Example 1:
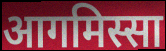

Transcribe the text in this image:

आगमिस्सा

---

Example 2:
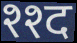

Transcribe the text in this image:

श्श्द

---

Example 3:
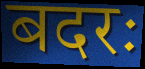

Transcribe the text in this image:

बदरः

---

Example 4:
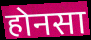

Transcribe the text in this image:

होनसा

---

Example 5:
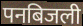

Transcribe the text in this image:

पनबिजली